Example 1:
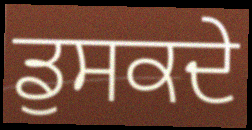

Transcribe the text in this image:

ਡੁਸਕਦੇ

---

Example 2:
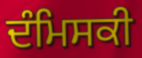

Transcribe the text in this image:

ਦੰਮਿਸਕੀ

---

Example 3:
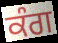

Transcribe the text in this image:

ਕੰਗ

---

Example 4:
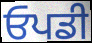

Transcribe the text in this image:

ਓਪਡੀ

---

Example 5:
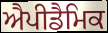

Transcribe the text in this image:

ਐਪੀਡੈਮਿਕ